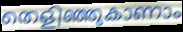
തെളിഞ്ഞുകാണാം